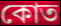
কোত